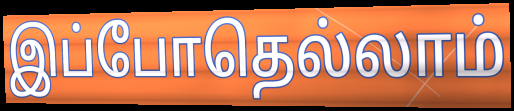
இப்போதெல்லாம்